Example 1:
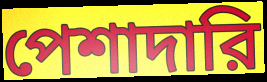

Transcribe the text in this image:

পেশাদারি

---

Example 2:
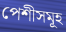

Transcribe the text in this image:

পেশীসমূহ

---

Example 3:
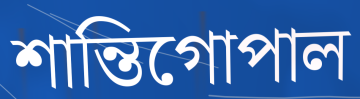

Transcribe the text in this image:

শান্তিগোপাল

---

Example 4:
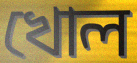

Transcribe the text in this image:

খোল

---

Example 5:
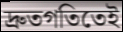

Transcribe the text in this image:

দ্রুতগতিতেই